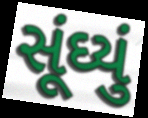
સૂંઘ્યું